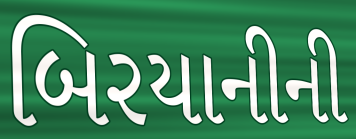
બિરયાનીની